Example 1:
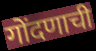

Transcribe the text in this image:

गोंदणाची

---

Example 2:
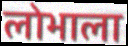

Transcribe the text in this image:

लोभाला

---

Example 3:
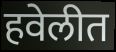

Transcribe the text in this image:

हवेलीत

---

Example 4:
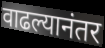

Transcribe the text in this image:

वाढल्यानंतर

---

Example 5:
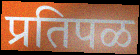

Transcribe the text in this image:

प्रतिपळ